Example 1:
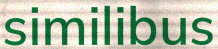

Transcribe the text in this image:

similibus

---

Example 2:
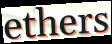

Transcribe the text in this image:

ethers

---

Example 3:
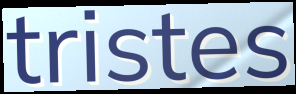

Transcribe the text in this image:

tristes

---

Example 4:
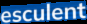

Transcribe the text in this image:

esculent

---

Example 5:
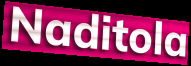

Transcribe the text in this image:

Naditola